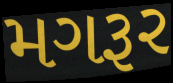
મગરૂર